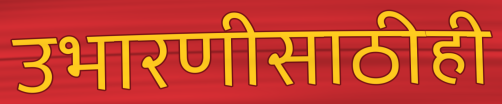
उभारणीसाठीही